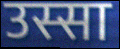
उस्सा